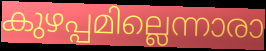
കുഴപ്പമില്ലെന്നാരാ